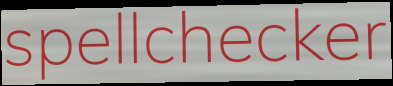
spellchecker